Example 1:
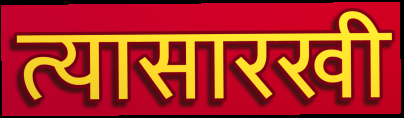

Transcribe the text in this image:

त्यासारखी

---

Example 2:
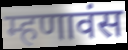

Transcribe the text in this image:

म्हणावंस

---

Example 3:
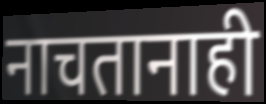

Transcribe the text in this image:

नाचतानाही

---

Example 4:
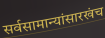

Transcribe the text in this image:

सर्वसामान्यांसारखंच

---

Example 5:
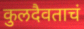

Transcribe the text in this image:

कुलदैवताचं